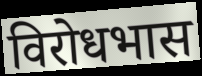
विरोधभास